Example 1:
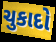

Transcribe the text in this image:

ચુકાદો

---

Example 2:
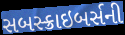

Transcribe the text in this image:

સબસ્ક્રાઇબર્સની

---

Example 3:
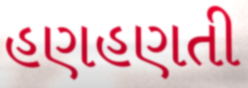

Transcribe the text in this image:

હણહણતી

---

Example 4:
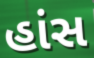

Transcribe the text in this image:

હાંસ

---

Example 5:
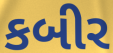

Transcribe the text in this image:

કબીર